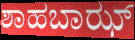
ಶಾಹಬಾಝ್